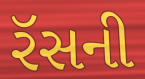
રૅસની